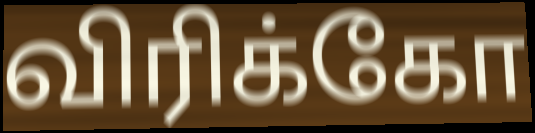
விரிக்கோ